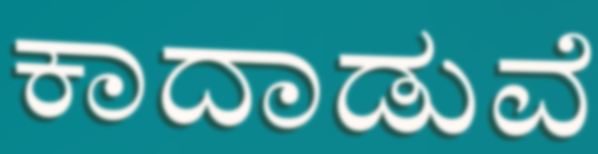
ಕಾದಾಡುವೆ